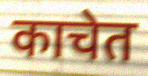
काचेत